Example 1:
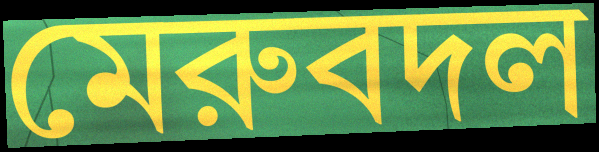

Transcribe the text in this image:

মেরুবদল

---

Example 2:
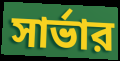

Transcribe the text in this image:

সার্ভার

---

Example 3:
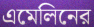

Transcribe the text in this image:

এমেলিনের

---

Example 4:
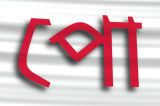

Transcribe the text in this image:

পো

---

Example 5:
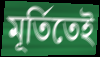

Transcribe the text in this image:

মূর্তিতেই